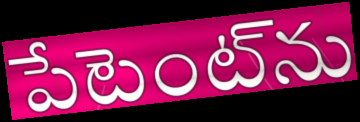
పేటెంట్‌ను